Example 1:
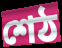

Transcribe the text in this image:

শেঠ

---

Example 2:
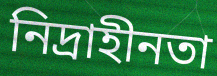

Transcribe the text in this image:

নিদ্রাহীনতা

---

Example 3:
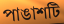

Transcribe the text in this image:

পাঙাশটি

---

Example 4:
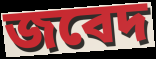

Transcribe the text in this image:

জবেদ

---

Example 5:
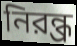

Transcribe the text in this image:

নিরন্ধ্র